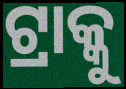
ଟ୍ରାକ୍କୁ